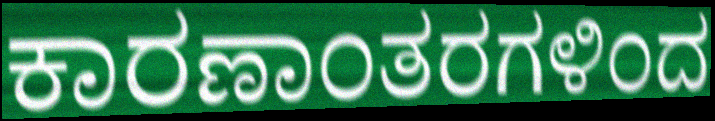
ಕಾರಣಾಂತರಗಳಿಂದ